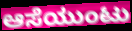
ಆಸೆಯುಂಟು